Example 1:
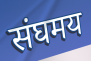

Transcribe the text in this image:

संघमय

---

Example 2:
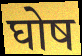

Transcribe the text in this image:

घोष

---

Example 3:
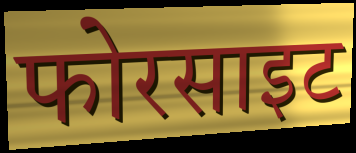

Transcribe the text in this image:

फोरसाइट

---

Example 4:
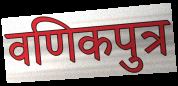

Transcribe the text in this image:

वणिकपुत्र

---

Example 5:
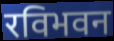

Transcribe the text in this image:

रविभवन